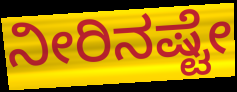
ನೀರಿನಷ್ಟೇ